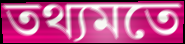
তথ্যমতে